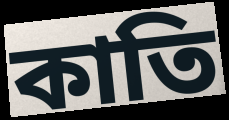
কাতি